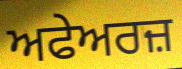
ਅਫੇਅਰਜ਼